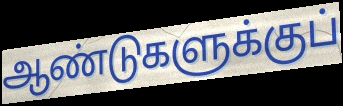
ஆண்டுகளுக்குப்